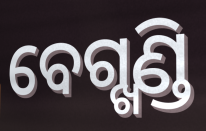
ବେଗ୍ଖଣ୍ଡି